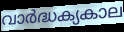
വാർദ്ധക്യകാല